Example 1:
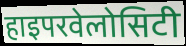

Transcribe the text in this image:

हाइपरवेलोसिटी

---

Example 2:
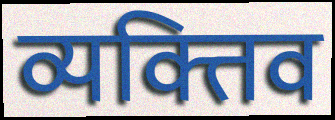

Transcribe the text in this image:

व्यक्तिव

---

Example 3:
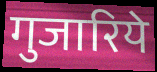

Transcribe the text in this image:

गुजारिये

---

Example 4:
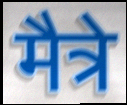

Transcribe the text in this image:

मैत्रे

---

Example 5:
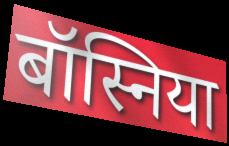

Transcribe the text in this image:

बॉस्निया